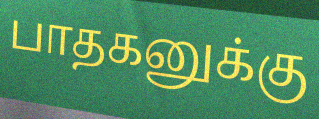
பாதகனுக்கு